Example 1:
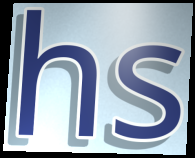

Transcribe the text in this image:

hs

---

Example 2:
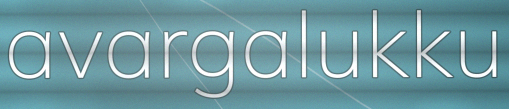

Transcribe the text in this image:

avargalukku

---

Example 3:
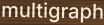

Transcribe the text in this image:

multigraph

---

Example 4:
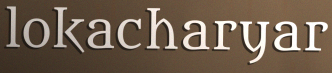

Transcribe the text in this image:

lokacharyar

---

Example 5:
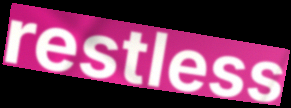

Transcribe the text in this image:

restless